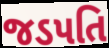
જડપતિ